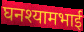
घनश्यामभाई